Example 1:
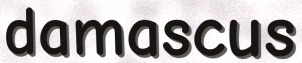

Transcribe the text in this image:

damascus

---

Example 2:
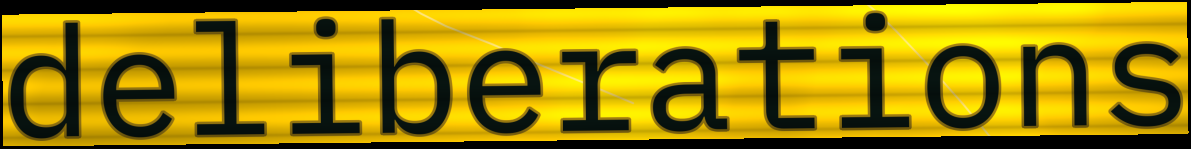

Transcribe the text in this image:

deliberations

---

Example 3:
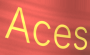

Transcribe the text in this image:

Aces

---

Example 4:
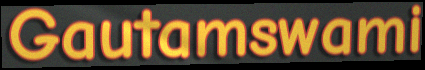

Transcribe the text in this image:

Gautamswami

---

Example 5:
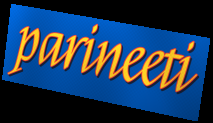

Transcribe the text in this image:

parineeti